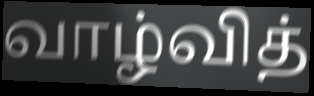
வாழ்வித்